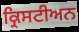
ਕ੍ਰਿਸਟੀਅਨ